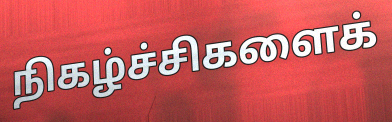
நிகழ்ச்சிகளைக்